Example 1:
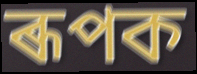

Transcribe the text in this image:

ৰূপক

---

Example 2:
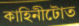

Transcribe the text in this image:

কাহিনীটোত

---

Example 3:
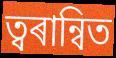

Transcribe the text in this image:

ত্বৰান্বিত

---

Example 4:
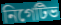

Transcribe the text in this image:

নিগেটিভ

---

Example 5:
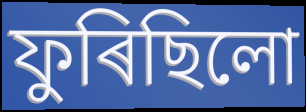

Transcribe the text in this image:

ফুৰিছিলো